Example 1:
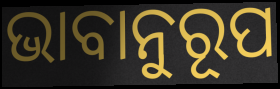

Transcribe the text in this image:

ଭାବାନୁରୂପ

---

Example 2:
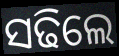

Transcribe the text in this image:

ସଢିଲେ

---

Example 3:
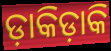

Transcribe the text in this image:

ଡ଼ାକିଡ଼ାକି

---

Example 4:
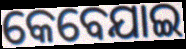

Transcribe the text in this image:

କେବେଯାଇ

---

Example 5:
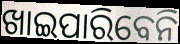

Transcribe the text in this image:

ଖାଇପାରିବେନି